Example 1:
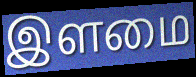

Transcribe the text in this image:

இளமை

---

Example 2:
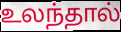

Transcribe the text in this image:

உலந்தால்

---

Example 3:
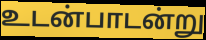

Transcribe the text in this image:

உடன்பாடன்று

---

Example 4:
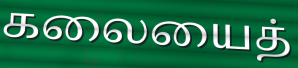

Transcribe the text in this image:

கலையைத்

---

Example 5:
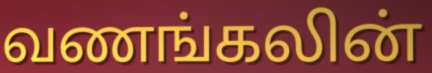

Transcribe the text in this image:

வணங்கலின்